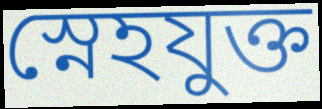
স্নেহযুক্ত